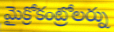
మైక్రోకంట్రోలర్ను